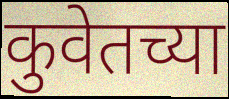
कुवेतच्या